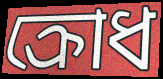
ক্ৰোধ